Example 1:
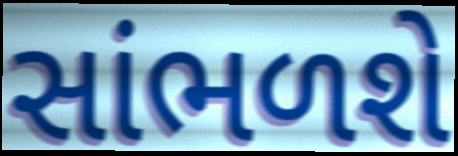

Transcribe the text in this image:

સાંભળશે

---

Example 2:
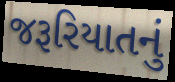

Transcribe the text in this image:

જરૂરિયાતનું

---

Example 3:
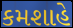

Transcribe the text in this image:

કમશાહે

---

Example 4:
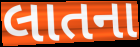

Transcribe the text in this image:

લાતના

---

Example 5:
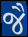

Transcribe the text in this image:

જૈ